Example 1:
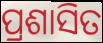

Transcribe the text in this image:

ପ୍ରଶାସିତ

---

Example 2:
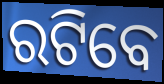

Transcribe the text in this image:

ରଟିବେ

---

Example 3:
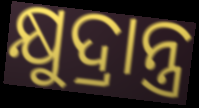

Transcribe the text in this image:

କ୍ଷୁଦ୍ରାନ୍ତ୍ର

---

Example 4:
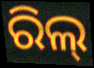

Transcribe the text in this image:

ରିଲ୍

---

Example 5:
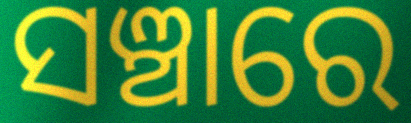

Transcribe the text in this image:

ସଞ୍ଚାରେ